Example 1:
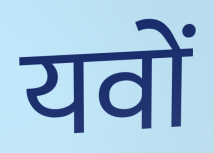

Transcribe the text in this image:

यवों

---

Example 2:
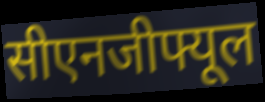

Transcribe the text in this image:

सीएनजीफ्यूल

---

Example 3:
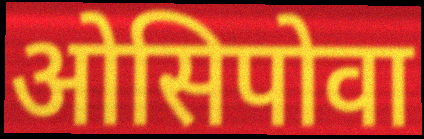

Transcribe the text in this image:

ओसिपोवा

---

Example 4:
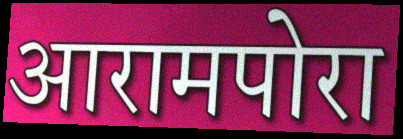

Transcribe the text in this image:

आरामपोरा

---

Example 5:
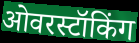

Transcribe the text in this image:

ओवरस्टॉकिंग